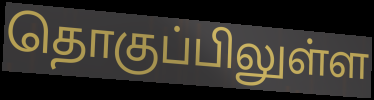
தொகுப்பிலுள்ள